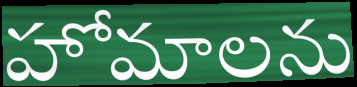
హోమాలను